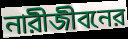
নারীজীবনের